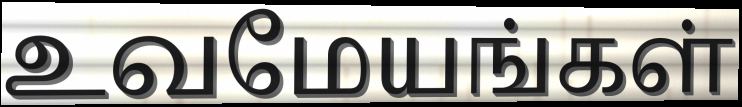
உவமேயங்கள்